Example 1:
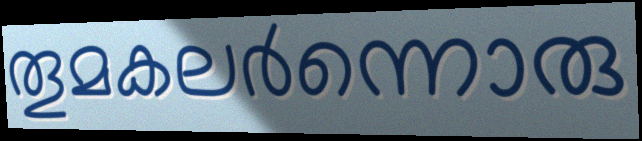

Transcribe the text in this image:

തൂമകലർന്നൊരു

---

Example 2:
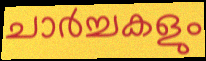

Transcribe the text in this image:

ചാർച്ചകളും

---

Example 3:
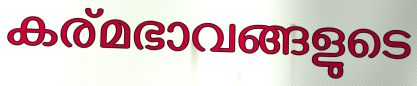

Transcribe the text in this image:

കര്മഭാവങ്ങളുടെ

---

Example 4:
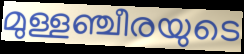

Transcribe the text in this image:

മുള്ളഞ്ചീരയുടെ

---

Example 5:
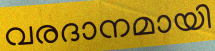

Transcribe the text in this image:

വരദാനമായി